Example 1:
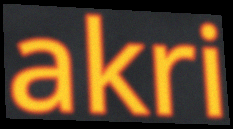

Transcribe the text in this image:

akri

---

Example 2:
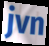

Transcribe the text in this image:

jvn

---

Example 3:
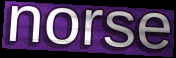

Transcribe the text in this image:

norse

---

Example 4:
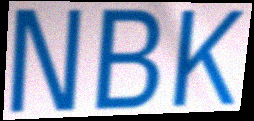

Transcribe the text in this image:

NBK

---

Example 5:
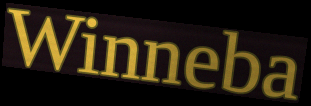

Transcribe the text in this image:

Winneba